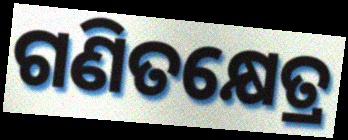
ଗଣିତକ୍ଷେତ୍ର